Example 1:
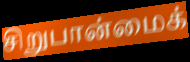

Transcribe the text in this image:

சிறுபான்மைக்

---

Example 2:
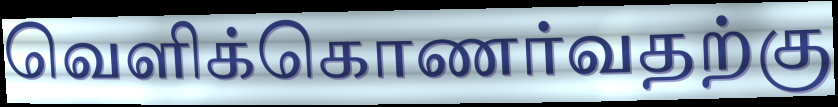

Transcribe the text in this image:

வெளிக்கொணர்வதற்கு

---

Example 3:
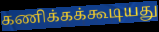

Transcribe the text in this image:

கணிக்கக்கூடியது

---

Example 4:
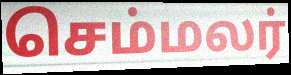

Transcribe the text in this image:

செம்மலர்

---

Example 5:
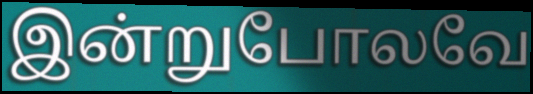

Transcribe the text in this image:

இன்றுபோலவே